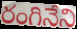
రంగినేని